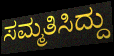
ಸಮ್ಮತಿಸಿದ್ದು